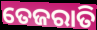
ତେଜରାତି